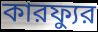
কারফ্যুর